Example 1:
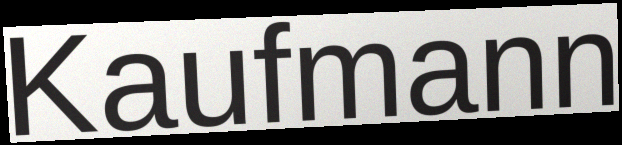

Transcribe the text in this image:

Kaufmann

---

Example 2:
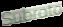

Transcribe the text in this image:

Subrato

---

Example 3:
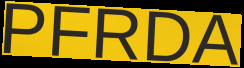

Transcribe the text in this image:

PFRDA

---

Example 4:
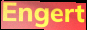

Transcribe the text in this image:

Engert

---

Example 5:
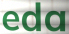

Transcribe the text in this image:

eda